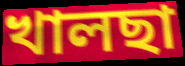
খালছা